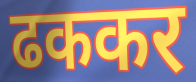
ढककर